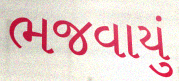
ભજવાયું